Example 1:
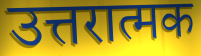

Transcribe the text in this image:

उत्तरात्मक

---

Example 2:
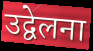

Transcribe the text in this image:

उद्वेलना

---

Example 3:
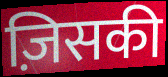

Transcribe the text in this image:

ज़िसकी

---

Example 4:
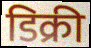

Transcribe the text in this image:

डिक्री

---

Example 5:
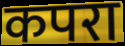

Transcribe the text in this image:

कपरा